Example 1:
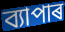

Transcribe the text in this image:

ব্যাপাৰ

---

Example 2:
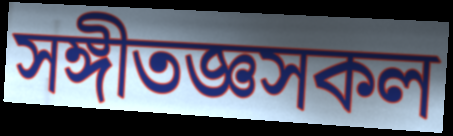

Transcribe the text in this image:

সঙ্গীতজ্ঞসকল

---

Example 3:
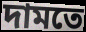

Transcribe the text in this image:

দামতে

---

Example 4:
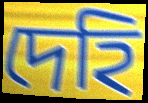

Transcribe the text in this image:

দেহি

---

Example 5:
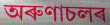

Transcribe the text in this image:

অৰুণাচলৰ